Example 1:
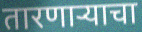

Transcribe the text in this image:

तारणाऱ्याचा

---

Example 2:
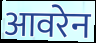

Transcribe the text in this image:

आवरेन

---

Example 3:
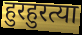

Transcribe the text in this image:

हुरहुरत्या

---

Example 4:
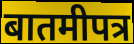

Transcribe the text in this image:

बातमीपत्र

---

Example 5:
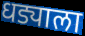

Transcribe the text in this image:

धड्याला